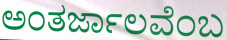
ಅಂತರ್ಜಾಲವೆಂಬ